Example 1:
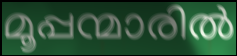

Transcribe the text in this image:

മൂപ്പന്മാരിൽ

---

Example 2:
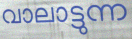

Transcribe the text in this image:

വാലാട്ടുന്ന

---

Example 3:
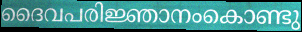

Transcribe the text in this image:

ദൈവപരിജ്ഞാനംകൊണ്ടു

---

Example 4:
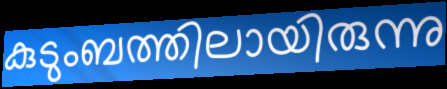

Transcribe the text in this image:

കുടുംബത്തിലായിരുന്നു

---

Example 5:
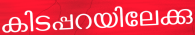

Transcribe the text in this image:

കിടപ്പറയിലേക്കു